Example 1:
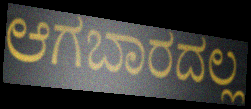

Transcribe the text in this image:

ಆಗಬಾರದಲ್ಲ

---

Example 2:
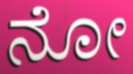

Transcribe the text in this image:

ನೋ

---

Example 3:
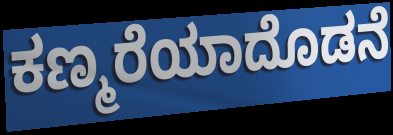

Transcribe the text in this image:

ಕಣ್ಮರೆಯಾದೊಡನೆ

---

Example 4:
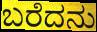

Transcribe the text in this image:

ಬರೆದನು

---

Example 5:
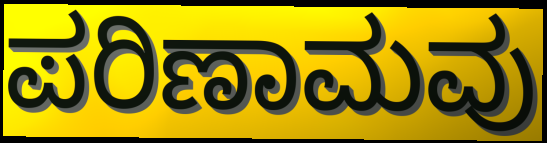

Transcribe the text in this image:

ಪರಿಣಾಮವು